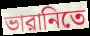
ভারানিতে